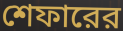
শেফারের